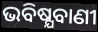
ଭବିଷ୍ଯବାଣୀ